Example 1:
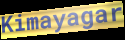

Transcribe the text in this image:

Kimayagar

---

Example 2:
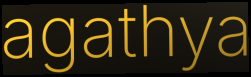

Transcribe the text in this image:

agathya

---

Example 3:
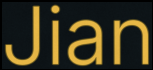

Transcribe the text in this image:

Jian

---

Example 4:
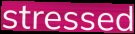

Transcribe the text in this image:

stressed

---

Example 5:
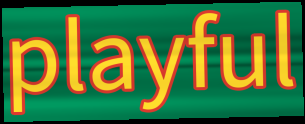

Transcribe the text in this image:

playful